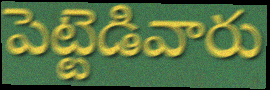
పెట్టెడివారు